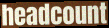
headcount